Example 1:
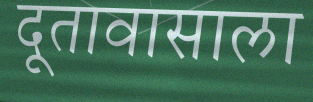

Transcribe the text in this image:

दूतावासाला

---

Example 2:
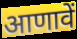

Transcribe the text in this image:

आणावें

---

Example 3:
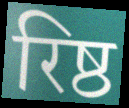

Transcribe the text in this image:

रिष्ठ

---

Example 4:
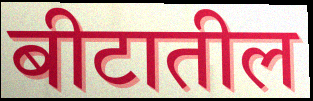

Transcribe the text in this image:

बीटातील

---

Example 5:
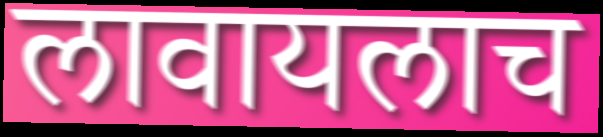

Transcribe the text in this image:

लावायलाच